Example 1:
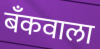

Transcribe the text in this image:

बँकवाला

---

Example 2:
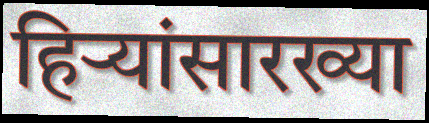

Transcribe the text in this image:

हिऱ्यांसारख्या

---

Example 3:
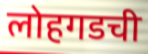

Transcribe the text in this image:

लोहगडची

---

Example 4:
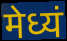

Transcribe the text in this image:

मेध्यं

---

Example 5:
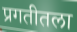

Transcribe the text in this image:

प्रगतीतला